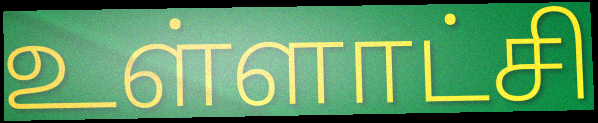
உள்ளாட்சி